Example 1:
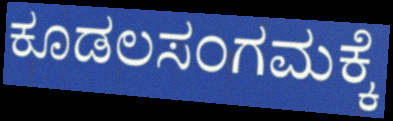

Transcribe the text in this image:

ಕೂಡಲಸಂಗಮಕ್ಕೆ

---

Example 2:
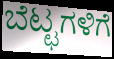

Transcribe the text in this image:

ಬೆಟ್ಟಗಳಿಗೆ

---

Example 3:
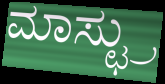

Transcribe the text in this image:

ಮಾಸ್ಟ್ರು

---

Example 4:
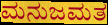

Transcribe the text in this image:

ಮನುಜಮತ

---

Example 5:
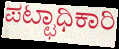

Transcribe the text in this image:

ಪಟ್ಟಾಧಿಕಾರಿ